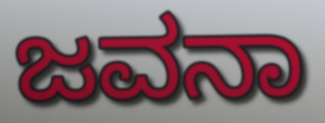
ಜವನಾ